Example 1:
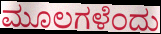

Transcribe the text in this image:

ಮೂಲಗಳೆಂದು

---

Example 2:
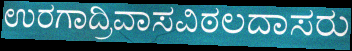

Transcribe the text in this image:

ಉರಗಾದ್ರಿವಾಸವಿಠಲದಾಸರು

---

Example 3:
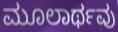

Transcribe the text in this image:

ಮೂಲಾರ್ಥವು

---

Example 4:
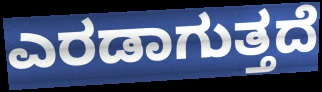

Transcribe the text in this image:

ಎರಡಾಗುತ್ತದೆ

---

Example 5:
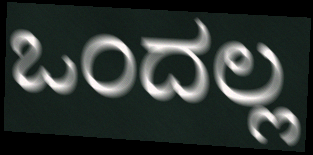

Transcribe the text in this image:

ಒಂದಲ್ಲ